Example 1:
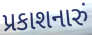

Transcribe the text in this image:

પ્રકાશનારું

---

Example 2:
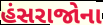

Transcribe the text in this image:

હંસરાજોના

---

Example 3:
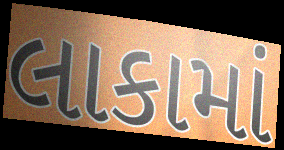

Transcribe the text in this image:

લાકામાં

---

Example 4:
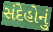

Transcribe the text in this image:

સંદેહોનું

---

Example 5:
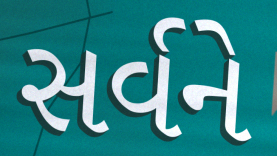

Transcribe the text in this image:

સર્વને